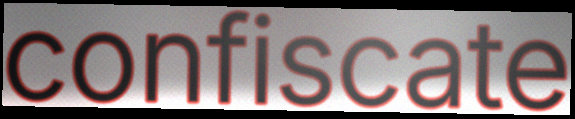
confiscate